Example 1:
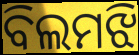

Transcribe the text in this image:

ବିଲମଝି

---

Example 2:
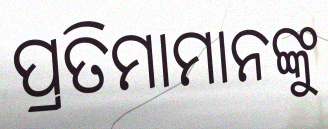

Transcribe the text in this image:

ପ୍ରତିମାମାନଙ୍କୁ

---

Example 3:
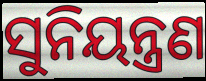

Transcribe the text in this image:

ସୁନିୟନ୍ତ୍ରଣ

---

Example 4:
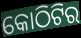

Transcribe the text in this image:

କୋଠିଟିର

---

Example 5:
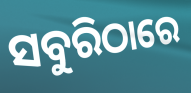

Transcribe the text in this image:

ସବୁରିଠାରେ